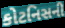
કોટનિસની